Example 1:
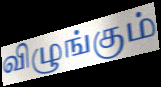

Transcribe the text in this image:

விழுங்கும்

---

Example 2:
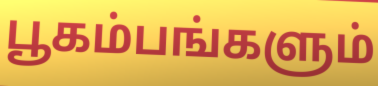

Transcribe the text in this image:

பூகம்பங்களும்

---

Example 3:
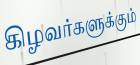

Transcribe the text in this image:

கிழவர்களுக்கும்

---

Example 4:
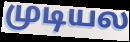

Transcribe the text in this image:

முடியல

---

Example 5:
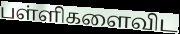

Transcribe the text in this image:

பள்ளிகளைவிட